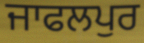
ਜਾਫਲਪੁਰ